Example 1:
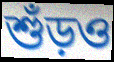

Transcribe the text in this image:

শুঁড়ও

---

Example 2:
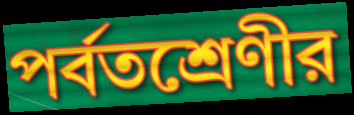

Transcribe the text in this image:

পর্বতশ্রেণীর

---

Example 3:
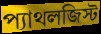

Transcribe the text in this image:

প্যাথলজিস্ট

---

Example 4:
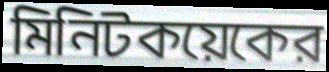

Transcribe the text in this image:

মিনিটকয়েকের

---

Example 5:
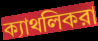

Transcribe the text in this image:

ক্যাথলিকরা